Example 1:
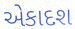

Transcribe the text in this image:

એકાદશ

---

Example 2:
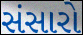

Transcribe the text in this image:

સંસારો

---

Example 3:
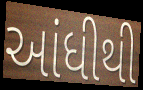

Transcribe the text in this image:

આંધીથી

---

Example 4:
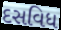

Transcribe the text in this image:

દસવિધ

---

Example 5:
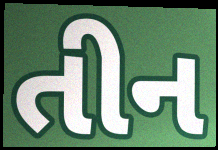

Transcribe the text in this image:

તીન